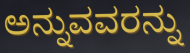
ಅನ್ನುವವರನ್ನು